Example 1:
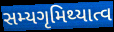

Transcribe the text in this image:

સમ્યગૃમિથ્યાત્વ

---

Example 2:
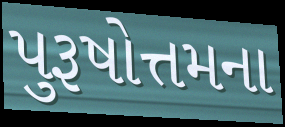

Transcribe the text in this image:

પુરૂષોત્તમના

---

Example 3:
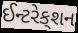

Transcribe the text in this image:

ઈન્ટરેક્‌શન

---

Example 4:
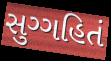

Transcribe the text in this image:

સુગ્ગહિતં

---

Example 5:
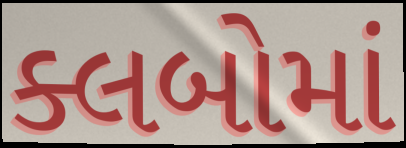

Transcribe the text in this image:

ક્લબોમાં